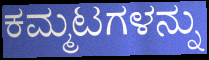
ಕಮ್ಮಟಗಳನ್ನು